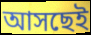
আসছেই